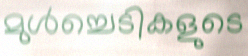
മുൾച്ചെടികളുടെ